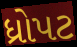
ધ્રોપટ